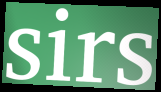
sirs